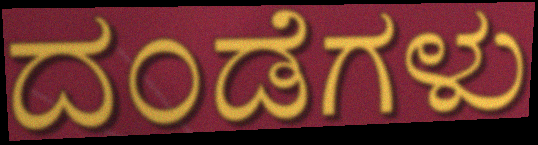
ದಂಡೆಗಳು